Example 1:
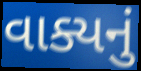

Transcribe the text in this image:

વાક્યનું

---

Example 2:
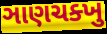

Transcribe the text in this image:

ઞાણચક્ખુ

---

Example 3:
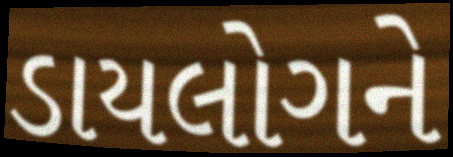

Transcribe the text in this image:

ડાયલોગને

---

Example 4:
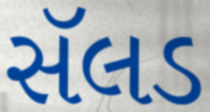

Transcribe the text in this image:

સૅલડ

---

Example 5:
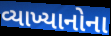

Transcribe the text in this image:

વ્યાખ્યાનોના